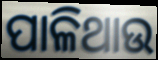
ପାଳିଥାଉ